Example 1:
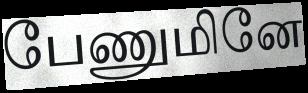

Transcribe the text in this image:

பேணுமினே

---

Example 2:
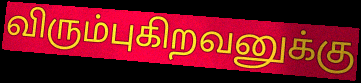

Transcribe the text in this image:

விரும்புகிறவனுக்கு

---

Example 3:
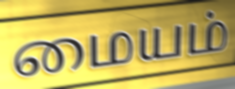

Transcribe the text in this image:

மையம்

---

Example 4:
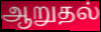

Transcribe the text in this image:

ஆறுதல்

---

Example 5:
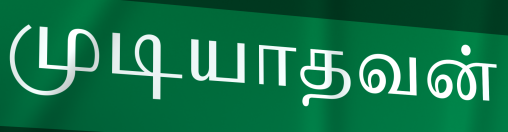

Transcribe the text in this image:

முடியாதவன்